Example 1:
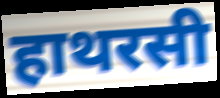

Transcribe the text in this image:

हाथरसी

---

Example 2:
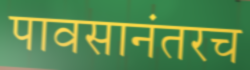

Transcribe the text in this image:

पावसानंतरच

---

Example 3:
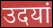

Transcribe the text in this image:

उदयां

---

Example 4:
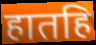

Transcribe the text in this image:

हातहि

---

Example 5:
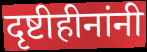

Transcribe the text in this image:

दृष्टीहीनांनी